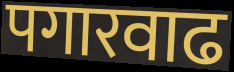
पगारवाढ